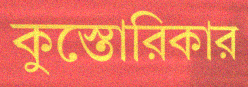
কুস্তোরিকার